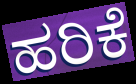
ಹರಿಕೆ